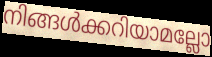
നിങ്ങൾക്കറിയാമല്ലോ